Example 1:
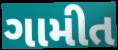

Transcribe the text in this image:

ગામીત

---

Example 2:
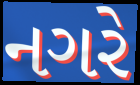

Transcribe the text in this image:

નગરે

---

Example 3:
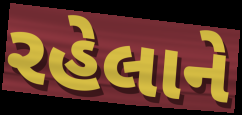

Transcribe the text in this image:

રહેલાને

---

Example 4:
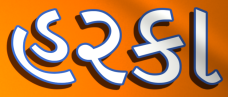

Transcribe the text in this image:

હરકા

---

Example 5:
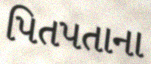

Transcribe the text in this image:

પિતપતાના